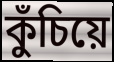
কুঁচিয়ে